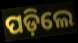
ପଡ଼ିଲେ